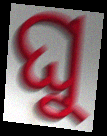
ଘୁ